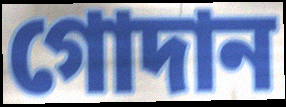
গোদান